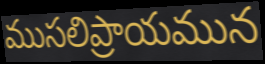
ముసలిప్రాయమున